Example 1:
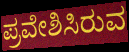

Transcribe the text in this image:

ಪ್ರವೇಶಿಸಿರುವ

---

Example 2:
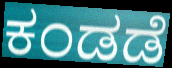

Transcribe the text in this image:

ಕಂಡಡೆ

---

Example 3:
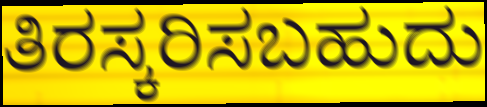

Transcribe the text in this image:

ತಿರಸ್ಕರಿಸಬಹುದು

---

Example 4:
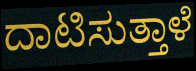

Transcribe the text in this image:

ದಾಟಿಸುತ್ತಾಳೆ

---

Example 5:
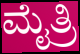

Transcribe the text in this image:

ಮೈತ್ರಿ